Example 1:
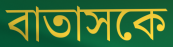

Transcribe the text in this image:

বাতাসকে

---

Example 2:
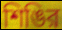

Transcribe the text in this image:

শিঙির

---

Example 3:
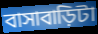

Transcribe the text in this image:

বাসাবাড়িটা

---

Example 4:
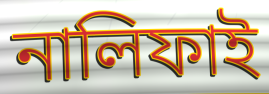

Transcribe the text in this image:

নালিফাই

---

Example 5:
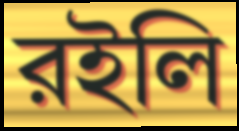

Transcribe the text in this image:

রইলি